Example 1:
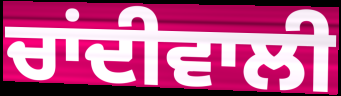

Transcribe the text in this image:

ਚਾਂਦੀਵਾਲੀ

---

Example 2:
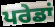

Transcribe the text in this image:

ਪਰੇਡਾਂ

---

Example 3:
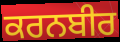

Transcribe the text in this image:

ਕਰਨਬੀਰ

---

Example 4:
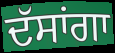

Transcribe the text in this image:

ਦੱਸਾਂਗਾ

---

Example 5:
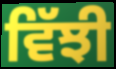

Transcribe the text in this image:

ਵਿੱਝੀ